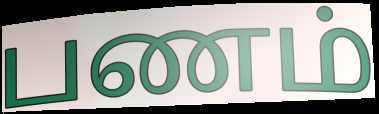
பணம்